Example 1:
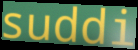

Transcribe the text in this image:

suddi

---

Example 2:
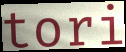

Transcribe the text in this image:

tori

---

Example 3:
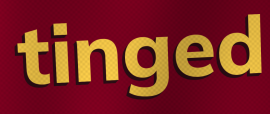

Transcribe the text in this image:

tinged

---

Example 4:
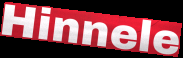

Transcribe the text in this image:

Hinnele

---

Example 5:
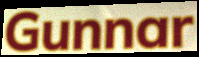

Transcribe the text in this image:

Gunnar